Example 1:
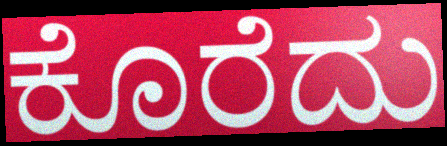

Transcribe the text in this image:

ಕೊರೆದು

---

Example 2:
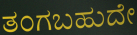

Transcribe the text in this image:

ತಂಗಬಹುದೇ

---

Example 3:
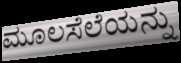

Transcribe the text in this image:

ಮೂಲಸೆಲೆಯನ್ನು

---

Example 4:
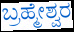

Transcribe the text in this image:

ಬ್ರಹ್ಮೇಶ್ವರ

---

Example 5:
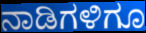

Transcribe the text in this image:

ನಾಡಿಗಳಿಗೂ